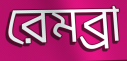
রেমব্রা